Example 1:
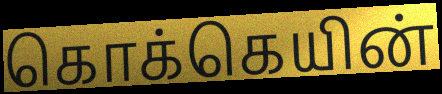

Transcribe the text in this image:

கொக்கெயின்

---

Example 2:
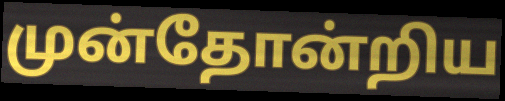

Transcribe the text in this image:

முன்தோன்றிய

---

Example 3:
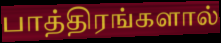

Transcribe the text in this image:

பாத்திரங்களால்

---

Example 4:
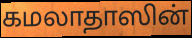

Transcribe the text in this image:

கமலாதாஸின்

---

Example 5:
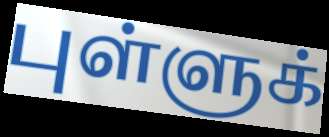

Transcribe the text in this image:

புள்ளுக்